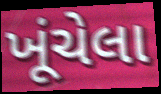
ખૂંચેલા